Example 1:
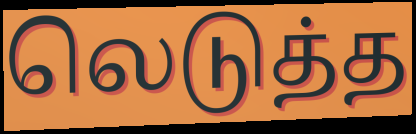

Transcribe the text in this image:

லெடுத்த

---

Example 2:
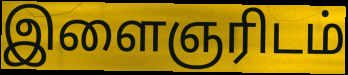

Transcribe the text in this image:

இளைஞரிடம்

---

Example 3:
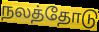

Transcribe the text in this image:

நலத்தோடு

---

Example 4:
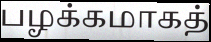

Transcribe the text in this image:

பழக்கமாகத்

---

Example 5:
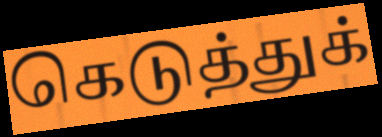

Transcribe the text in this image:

கெடுத்துக்